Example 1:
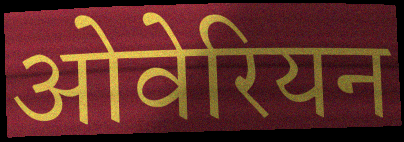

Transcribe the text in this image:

ओवेरियन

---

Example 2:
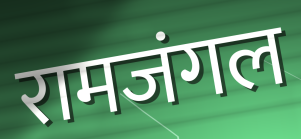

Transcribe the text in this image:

रामजंगल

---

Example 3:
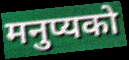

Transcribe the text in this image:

मनुप्यको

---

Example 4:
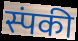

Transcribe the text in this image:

स्पंकी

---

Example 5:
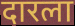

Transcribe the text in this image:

दारला